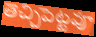
తెచ్చిపెట్టవూ